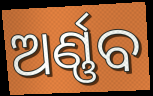
ଅର୍ଣ୍ଣବ